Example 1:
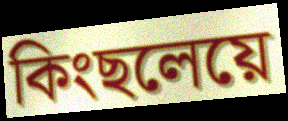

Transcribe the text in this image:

কিংছলেয়ে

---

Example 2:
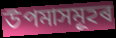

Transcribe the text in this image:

উপমাসমূহৰ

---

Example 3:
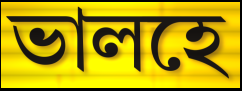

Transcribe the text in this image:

ভালহে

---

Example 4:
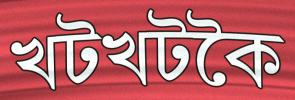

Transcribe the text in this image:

খটখটকৈ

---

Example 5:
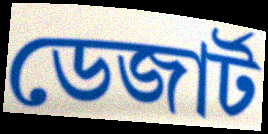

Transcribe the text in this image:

ডেজাৰ্ট